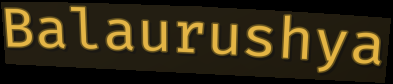
Balaurushya